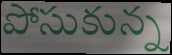
పోసుకున్న